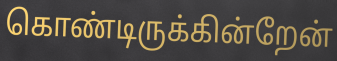
கொண்டிருக்கின்றேன்